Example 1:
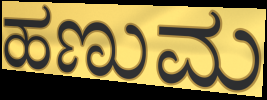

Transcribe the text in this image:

ಹಣುಮ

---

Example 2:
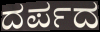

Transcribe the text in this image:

ದರ್ಪದ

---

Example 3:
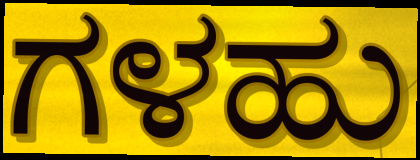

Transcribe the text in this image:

ಗಳಹು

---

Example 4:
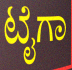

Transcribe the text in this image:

ಟೈಗಾ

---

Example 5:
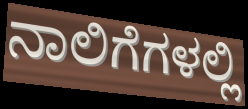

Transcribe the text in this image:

ನಾಲಿಗೆಗಳಲ್ಲಿ